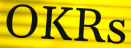
OKRs